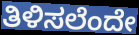
ತಿಳಿಸಲೆಂದೇ